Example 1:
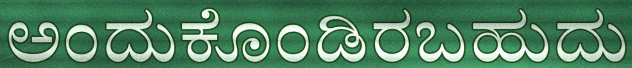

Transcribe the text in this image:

ಅಂದುಕೊಂಡಿರಬಹುದು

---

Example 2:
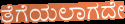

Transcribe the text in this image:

ತೆಗೆಯಲಾಗದೇ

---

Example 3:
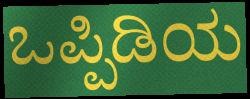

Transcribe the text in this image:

ಒಪ್ಪಿಡಿಯ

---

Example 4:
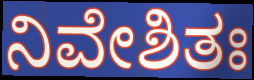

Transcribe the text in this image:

ನಿವೇಶಿತಃ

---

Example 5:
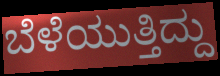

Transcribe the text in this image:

ಬೆಳೆಯುತ್ತಿದ್ದು